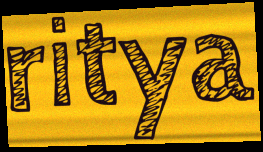
ritya